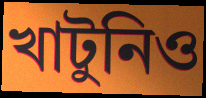
খাটুনিও